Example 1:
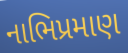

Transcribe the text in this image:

નાભિપ્રમાણ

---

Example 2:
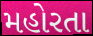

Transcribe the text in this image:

મહોરતા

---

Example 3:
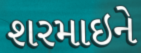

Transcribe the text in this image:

શરમાઇને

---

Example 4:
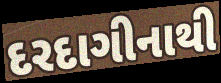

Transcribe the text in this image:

દરદાગીનાથી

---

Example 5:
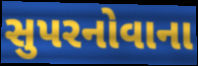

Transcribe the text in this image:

સુપરનોવાના